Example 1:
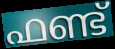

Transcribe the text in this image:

ഫണ്ട്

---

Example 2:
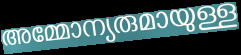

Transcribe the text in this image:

അമ്മോന്യരുമായുള്ള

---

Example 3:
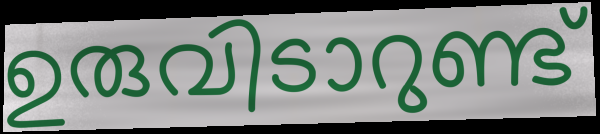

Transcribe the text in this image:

ഉരുവിടാറുണ്ട്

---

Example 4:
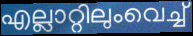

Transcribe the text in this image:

എല്ലാറ്റിലുംവെച്ച്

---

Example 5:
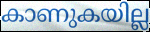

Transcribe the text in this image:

കാണുകയില്ല